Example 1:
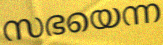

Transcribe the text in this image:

സഭയെന്ന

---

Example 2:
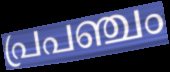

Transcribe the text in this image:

പ്രപഞ്ചം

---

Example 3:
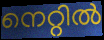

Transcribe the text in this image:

നെറ്റിൽ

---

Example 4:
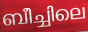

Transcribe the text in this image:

ബീച്ചിലെ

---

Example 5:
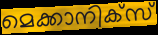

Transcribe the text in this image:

മെക്കാനിക്സ്